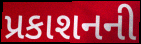
પ્રકાશનની